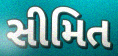
સીમિત